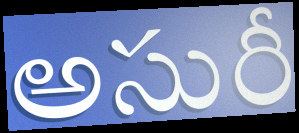
అసురీ